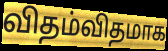
விதம்விதமாக